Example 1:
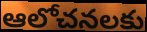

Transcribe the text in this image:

ఆలోచనలకు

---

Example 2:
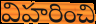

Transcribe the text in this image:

విహరించి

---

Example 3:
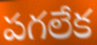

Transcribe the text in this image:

పగలేక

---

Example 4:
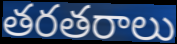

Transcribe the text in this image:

తరతరాలు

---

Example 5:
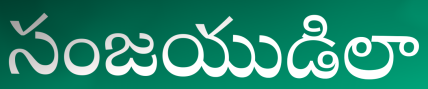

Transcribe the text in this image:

సంజయుడిలా